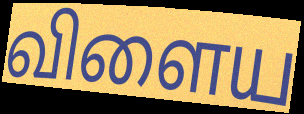
விளைய